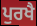
ਪੁਰਖੈ